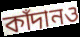
কাঁদানও